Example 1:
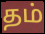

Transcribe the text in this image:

தம்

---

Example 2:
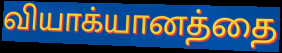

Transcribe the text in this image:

வியாக்யானத்தை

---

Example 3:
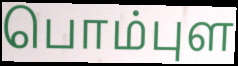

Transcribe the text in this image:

பொம்புள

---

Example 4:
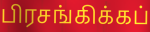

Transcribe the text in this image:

பிரசங்கிக்கப்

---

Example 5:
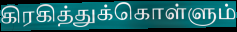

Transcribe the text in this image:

கிரகித்துக்கொள்ளும்